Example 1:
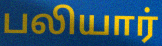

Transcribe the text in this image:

பலியார்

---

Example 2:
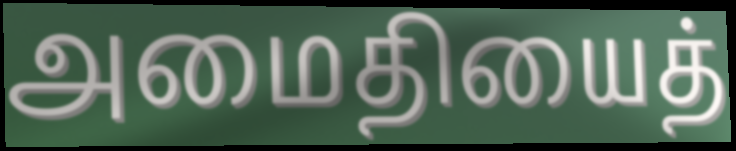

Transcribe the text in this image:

அமைதியைத்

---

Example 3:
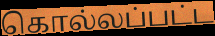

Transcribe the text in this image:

கொல்லப்பட்ட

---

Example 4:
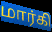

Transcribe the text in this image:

மார்கி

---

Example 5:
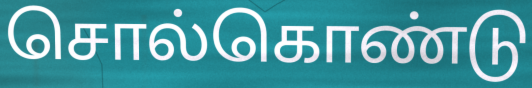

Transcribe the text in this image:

சொல்கொண்டு